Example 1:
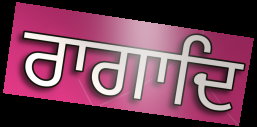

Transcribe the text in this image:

ਰਾਗਾਦਿ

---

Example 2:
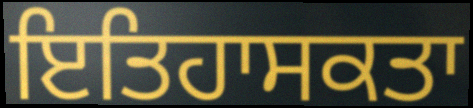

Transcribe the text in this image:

ਇਤਿਹਾਸਕਤਾ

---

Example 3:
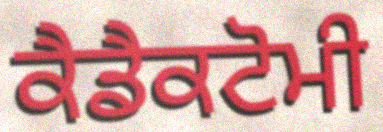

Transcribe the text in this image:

ਕੈਡੈਕਟੋਮੀ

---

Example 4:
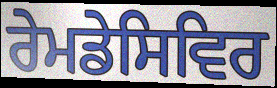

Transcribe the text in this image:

ਰੇਮਡੇਸਿਵਿਰ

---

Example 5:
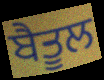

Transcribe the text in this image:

ਬੈਤੂਲ